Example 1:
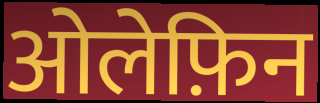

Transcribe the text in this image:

ओलेफ़िन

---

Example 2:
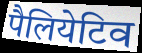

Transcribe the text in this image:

पैलियेटिव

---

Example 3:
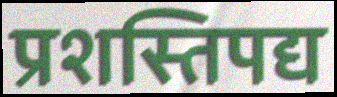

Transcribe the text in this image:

प्रशस्तिपद्य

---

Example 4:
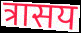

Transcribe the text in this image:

त्रासय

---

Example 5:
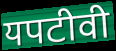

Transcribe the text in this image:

यपटीवी